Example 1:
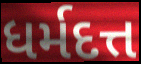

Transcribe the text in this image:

ધર્મદત્ત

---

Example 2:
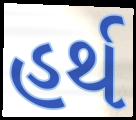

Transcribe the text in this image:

હર્થ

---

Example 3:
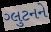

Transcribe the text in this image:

ગ્લુટનને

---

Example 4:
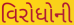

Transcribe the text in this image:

વિરોધોની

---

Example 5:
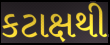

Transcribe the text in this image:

કટાક્ષથી